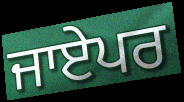
ਜਾਏਪਰ